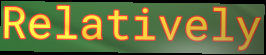
Relatively